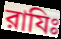
রাযিঃ